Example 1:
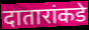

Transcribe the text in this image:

दातारांकडे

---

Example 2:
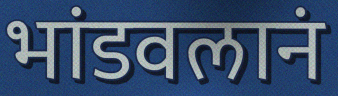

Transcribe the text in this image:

भांडवलानं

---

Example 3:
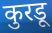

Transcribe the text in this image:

कुरडू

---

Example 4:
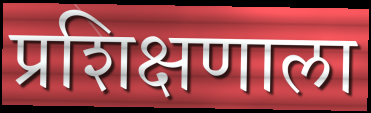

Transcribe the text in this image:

प्रशिक्षणाला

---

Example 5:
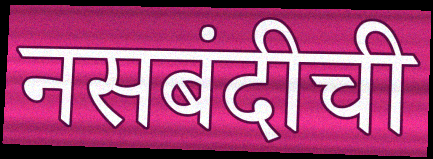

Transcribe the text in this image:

नसबंदीची